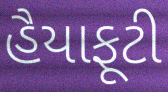
હૈયાફૂટી